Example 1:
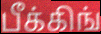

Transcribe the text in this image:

பீக்கிங்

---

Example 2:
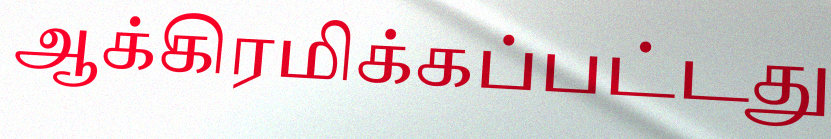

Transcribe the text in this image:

ஆக்கிரமிக்கப்பட்டது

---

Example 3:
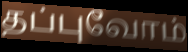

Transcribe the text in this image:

தப்புவோம்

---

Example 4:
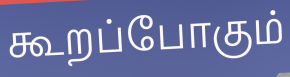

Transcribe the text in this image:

கூறப்போகும்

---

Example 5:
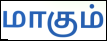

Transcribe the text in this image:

மாகும்